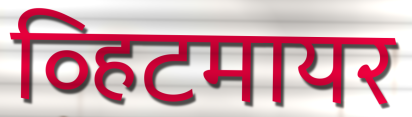
व्हिटमायर